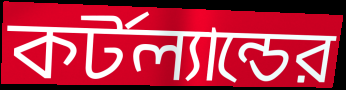
কর্টল্যান্ডের